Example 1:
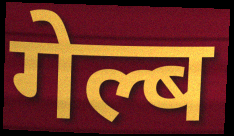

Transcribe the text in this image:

गेल्ब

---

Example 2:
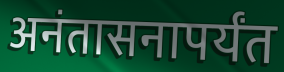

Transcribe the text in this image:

अनंतासनापर्यंत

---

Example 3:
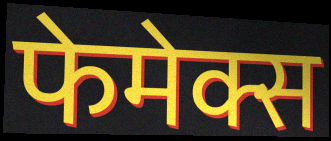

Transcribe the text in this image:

फेमेक्स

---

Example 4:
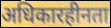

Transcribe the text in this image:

अधिकारहीनता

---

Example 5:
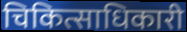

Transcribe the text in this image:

चिकित्साधिकारी